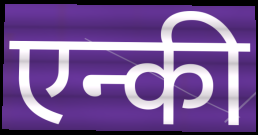
एन्की